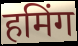
हमिंग